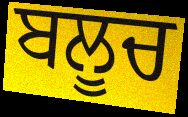
ਬਲੂਚ